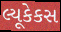
લ્યૂકેકસ